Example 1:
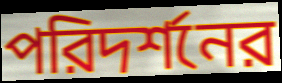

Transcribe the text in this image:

পরিদর্শনের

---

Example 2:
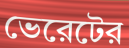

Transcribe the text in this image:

ভেরেটের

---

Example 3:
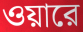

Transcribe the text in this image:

ওয়ারে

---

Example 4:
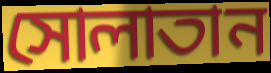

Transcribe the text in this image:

সোলাতান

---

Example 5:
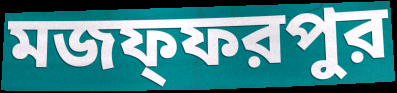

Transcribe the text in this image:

মজফ্ফরপুর